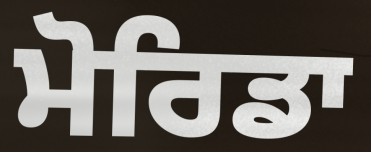
ਮੋਰਿਡਾ